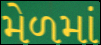
મેળમાં